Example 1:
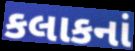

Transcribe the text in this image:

કલાકનાં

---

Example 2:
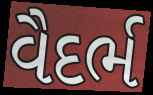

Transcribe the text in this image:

વૈદર્ભ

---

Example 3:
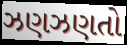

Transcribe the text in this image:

ઝણઝણતો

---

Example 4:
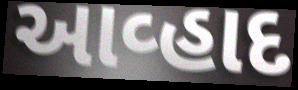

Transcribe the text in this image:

આવ્હાદ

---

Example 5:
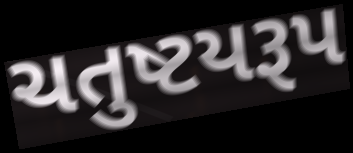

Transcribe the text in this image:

ચતુષ્ટયરૂપ